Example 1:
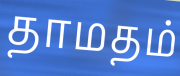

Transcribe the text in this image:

தாமதம்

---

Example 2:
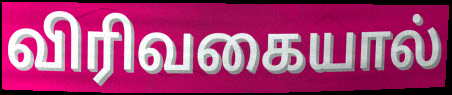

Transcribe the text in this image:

விரிவகையால்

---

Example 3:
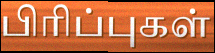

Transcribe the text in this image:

பிரிப்புகள்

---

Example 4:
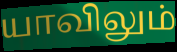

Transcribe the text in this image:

யாவிலும்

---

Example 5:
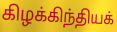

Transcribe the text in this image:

கிழக்கிந்தியக்